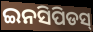
ଇନସିପିଡସ୍